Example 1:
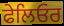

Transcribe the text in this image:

ਫੇਲਿਓਰ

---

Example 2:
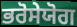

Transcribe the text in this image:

ਭਰੋਸੇਯੋਗ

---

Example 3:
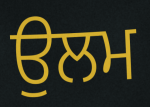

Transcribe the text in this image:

ਉਲਮ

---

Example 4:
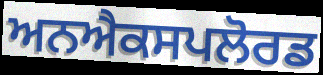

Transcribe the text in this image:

ਅਨਐਕਸਪਲੋਰਡ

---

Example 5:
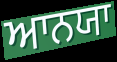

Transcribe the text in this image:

ਆਨਯਾ